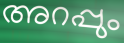
അറപ്പും